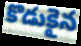
కొడుకైన